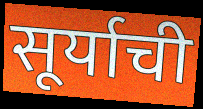
सूर्याची